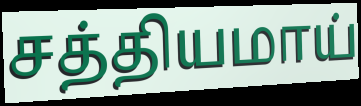
சத்தியமாய்